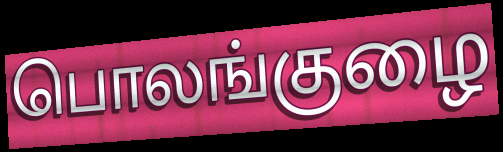
பொலங்குழை